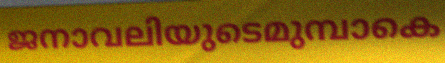
ജനാവലിയുടെമുമ്പാകെ